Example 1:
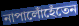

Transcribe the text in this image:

নাপালোঁহেঁতেন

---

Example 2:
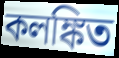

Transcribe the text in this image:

কলঙ্কিত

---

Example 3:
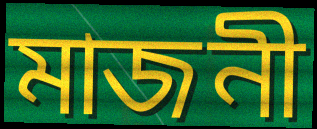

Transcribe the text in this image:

মাজনী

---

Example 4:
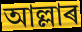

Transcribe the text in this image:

আল্লাৰ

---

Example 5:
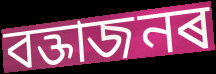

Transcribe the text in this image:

বক্তাজনৰ